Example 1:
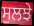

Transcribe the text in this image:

ਸੁਲਝੇ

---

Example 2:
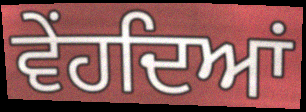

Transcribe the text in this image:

ਵੇਂਹਦਿਆਂ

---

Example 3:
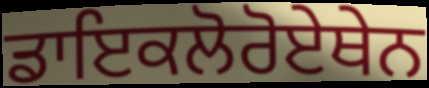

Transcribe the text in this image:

ਡਾਇਕਲੋਰੋਏਥੇਨ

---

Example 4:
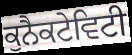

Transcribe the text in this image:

ਕੁਨੈਕਟੇਵਿਟੀ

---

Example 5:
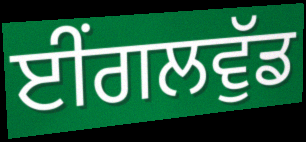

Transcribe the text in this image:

ਈਂਗਲਵੁੱਡ